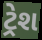
ટ્રેશ